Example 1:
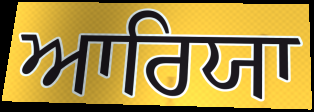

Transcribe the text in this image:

ਆਰਿਯਾ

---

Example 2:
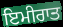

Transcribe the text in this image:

ਇਮੀਰਾਤ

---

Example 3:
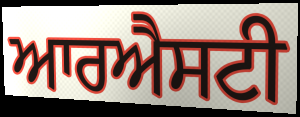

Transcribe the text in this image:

ਆਰਐਸਟੀ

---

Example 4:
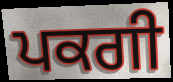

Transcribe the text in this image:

ਪਕਗੀ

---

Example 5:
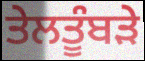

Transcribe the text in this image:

ਤੇਲਤੂੰਬੜੇ